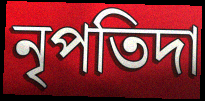
নৃপতিদা